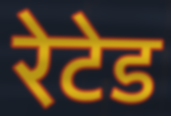
रेटेड